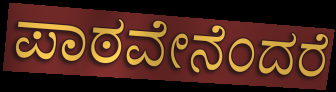
ಪಾಠವೇನೆಂದರೆ